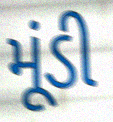
મૂંડી